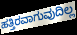
ಹತ್ತಿರವಾಗುವುದಿಲ್ಲ